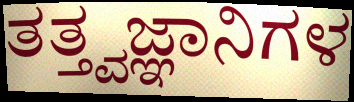
ತತ್ತ್ವಜ್ಞಾನಿಗಳ